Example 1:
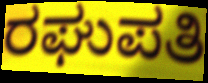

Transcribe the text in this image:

ರಘುಪತಿ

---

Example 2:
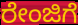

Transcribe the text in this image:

ರೇಂಜಿಗೆ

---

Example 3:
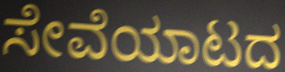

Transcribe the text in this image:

ಸೇವೆಯಾಟದ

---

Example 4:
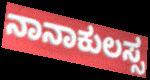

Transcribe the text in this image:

ನಾನಾಕುಲಸ್ಸ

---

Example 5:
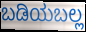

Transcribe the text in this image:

ಬಡಿಯಬಲ್ಲ